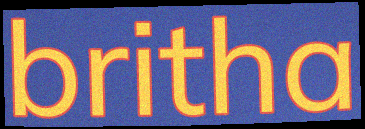
britha